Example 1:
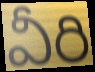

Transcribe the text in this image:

వీరి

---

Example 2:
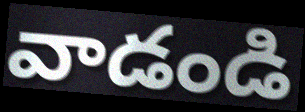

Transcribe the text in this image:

వాడండి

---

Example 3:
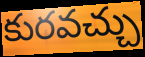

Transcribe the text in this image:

కురవచ్చు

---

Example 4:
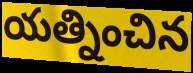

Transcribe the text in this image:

యత్నించిన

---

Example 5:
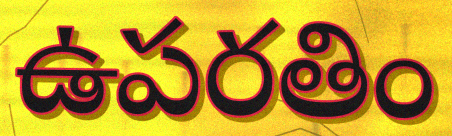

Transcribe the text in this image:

ఉపరతిం